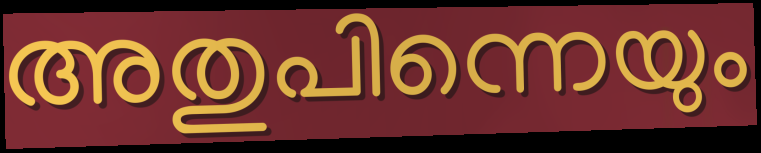
അതുപിന്നെയും